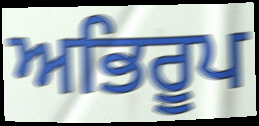
ਅਭਿਰੂਪ